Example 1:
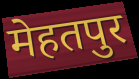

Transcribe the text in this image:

मेहतपुर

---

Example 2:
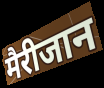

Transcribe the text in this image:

मैरीजान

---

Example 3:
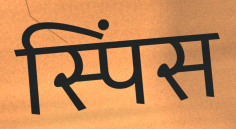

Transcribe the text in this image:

स्पिंस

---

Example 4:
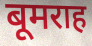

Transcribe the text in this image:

बूमराह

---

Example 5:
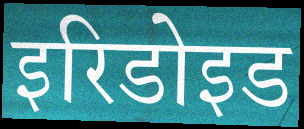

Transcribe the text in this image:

इरिडोइड